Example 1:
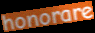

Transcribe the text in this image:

honorare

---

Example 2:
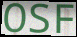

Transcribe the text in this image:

OSF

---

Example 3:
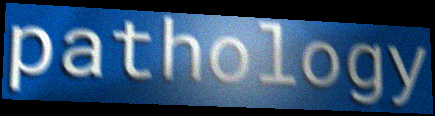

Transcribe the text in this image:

pathology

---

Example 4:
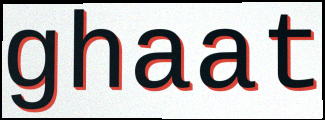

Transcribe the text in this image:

ghaat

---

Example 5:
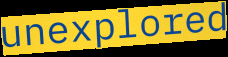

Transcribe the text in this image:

unexplored